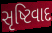
સૃષ્ટિવાદ